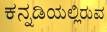
ಕನ್ನಡಿಯಲ್ಲಿರುವ